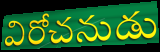
విరోచనుడు